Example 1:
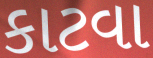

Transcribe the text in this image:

કાટવા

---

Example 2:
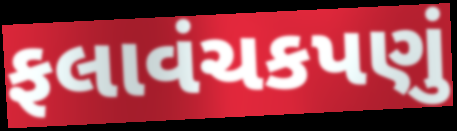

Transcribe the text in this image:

ફલાવંચકપણું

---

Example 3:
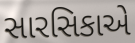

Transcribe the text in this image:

સારસિકાએ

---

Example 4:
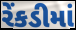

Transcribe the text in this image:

રેંકડીમાં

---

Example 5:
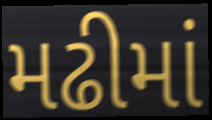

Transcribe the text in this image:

મઢીમાં